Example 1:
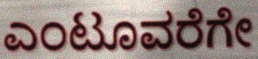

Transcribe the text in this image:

ಎಂಟೂವರೆಗೇ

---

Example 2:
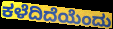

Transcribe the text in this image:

ಕಳೆದಿದೆಯೆಂದು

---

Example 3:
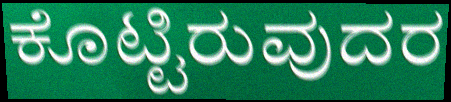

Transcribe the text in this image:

ಕೊಟ್ಟಿರುವುದರ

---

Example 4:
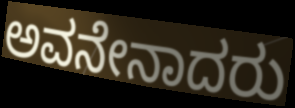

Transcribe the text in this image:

ಅವನೇನಾದರು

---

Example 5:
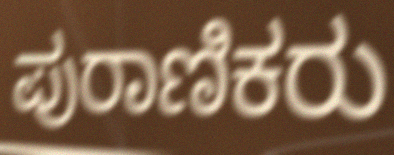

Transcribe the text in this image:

ಪುರಾಣಿಕರು